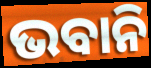
ଭବାନି